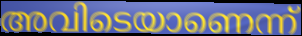
അവിടെയാണെന്ന്